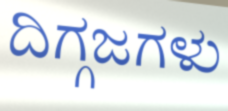
ದಿಗ್ಗಜಗಳು